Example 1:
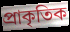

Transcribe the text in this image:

প্রাকৃতিক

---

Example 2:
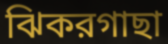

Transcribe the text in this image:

ঝিকরগাছা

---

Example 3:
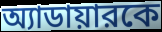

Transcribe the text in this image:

অ্যাডায়ারকে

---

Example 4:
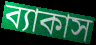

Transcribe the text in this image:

ব্যাকাস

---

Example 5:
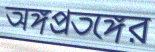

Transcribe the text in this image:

অঙ্গপ্রতঙ্গের